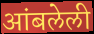
आंबलेली